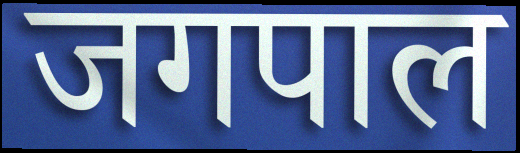
जगपाल